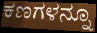
ಕಣಗಳನ್ನೂ